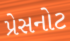
પ્રેસનોટ